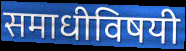
समाधीविषयी